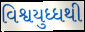
વિશ્વયુધ્ધથી